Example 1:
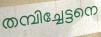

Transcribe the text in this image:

തമ്പിച്ചേട്ടനെ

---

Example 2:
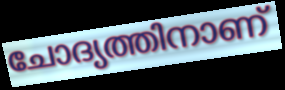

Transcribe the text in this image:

ചോദ്യത്തിനാണ്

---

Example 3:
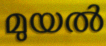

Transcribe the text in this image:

മുയൽ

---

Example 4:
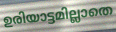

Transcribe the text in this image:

ഉരിയാട്ടമില്ലാതെ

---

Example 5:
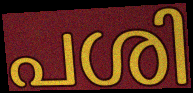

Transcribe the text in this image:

പശി